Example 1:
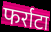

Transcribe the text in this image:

फर्राटा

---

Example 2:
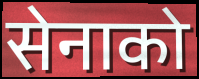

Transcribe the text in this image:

सेनाको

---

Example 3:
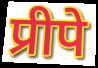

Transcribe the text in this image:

प्रीपे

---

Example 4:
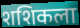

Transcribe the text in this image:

शशिकला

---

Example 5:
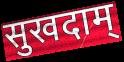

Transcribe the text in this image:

सुखदाम्